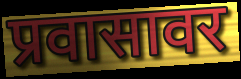
प्रवासावर